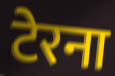
टेरना